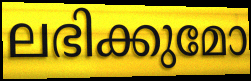
ലഭിക്കുമോ